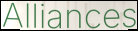
Alliances